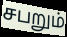
சபறும்